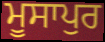
ਮੂਸਾਪੁਰ